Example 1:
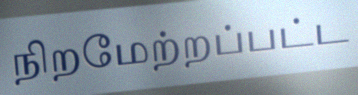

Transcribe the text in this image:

நிறமேற்றப்பட்ட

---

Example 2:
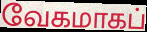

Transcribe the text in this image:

வேகமாகப்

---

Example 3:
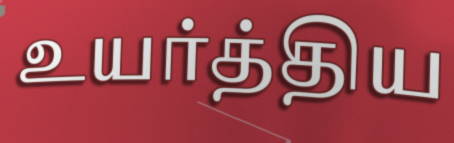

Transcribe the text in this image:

உயர்த்திய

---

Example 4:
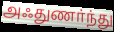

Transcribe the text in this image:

அஃதுணர்ந்து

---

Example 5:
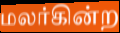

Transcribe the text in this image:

மலர்கின்ற